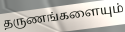
தருணங்களையும்